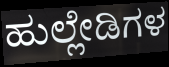
ಹುಲ್ಲೇಡಿಗಳ